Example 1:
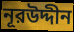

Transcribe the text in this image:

নূরউদ্দীন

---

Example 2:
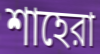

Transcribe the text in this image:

শাহেরা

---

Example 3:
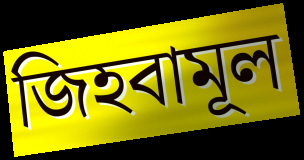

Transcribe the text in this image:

জিহবামূল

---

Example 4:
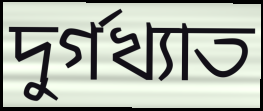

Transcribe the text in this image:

দুর্গখ্যাত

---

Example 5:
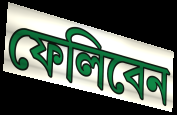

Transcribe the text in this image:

ফেলিবেন